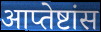
आप्तेष्टांस